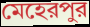
মেহেরপুর